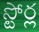
స్టోర్ల